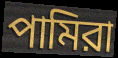
পামিরা